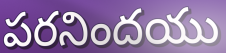
పరనిందయు